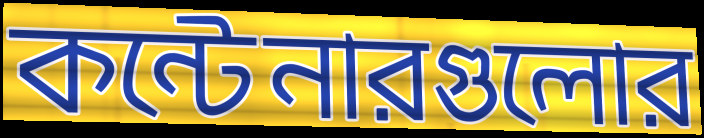
কন্টেনারগুলোর